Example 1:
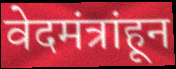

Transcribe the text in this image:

वेदमंत्रांहून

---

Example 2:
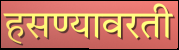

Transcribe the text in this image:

हसण्यावरती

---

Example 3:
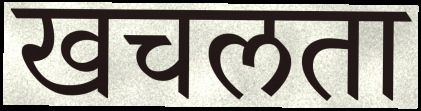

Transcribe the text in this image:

खचलता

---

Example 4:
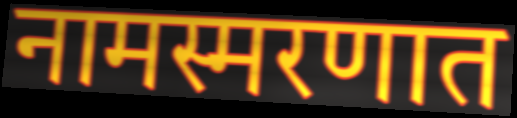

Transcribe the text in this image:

नामस्मरणात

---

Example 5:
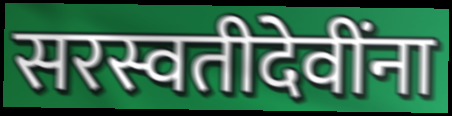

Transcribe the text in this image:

सरस्वतीदेवींना